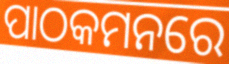
ପାଠକମନରେ